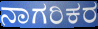
ನಾಗರಿಕರ